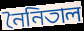
নৈনিতাল